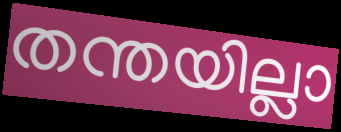
തന്തയില്ലാ